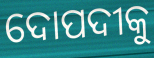
ଦୋପଦୀକୁ